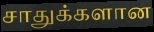
சாதுக்களான